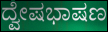
ದ್ವೇಷಭಾಷಣ